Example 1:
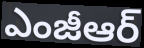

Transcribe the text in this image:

ఎంజీఆర్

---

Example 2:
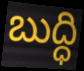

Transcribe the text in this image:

బుద్ధి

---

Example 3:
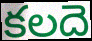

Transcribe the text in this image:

కలదె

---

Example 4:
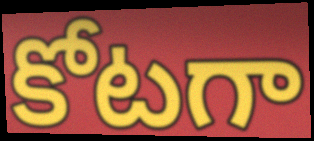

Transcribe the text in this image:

కోటగా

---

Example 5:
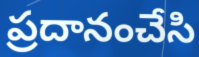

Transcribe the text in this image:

ప్రదానంచేసి